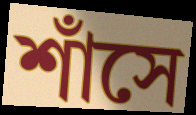
শাঁসে